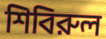
শিবিরুল